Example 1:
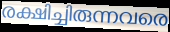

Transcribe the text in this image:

രക്ഷിച്ചിരുന്നവരെ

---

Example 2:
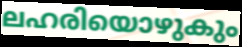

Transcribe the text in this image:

ലഹരിയൊഴുകും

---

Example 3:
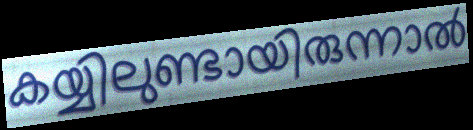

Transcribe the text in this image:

കയ്യിലുണ്ടായിരുന്നാൽ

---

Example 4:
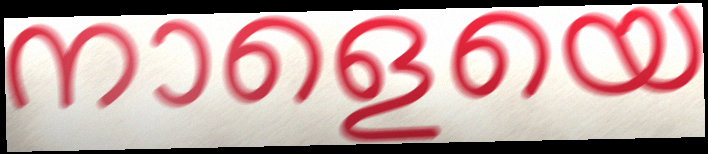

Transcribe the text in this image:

നാളെയെ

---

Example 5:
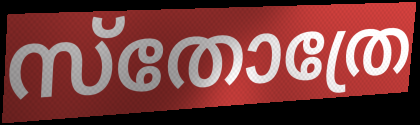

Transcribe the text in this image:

സ്തോത്രേ